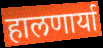
हालणार्या